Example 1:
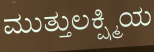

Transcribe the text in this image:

ಮುತ್ತುಲಕ್ಷ್ಮಿಯ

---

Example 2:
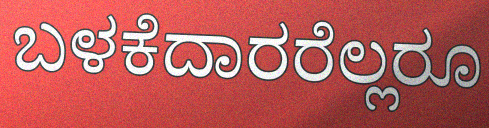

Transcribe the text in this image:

ಬಳಕೆದಾರರೆಲ್ಲರೂ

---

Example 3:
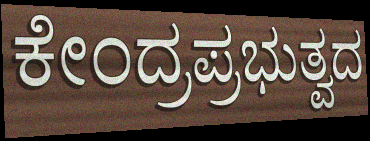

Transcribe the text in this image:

ಕೇಂದ್ರಪ್ರಭುತ್ವದ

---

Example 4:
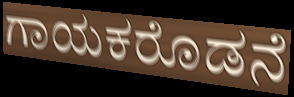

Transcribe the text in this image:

ಗಾಯಕರೊಡನೆ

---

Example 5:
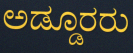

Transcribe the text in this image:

ಅಡ್ಡೂರರು